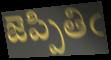
జెప్పితిఁ